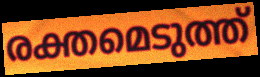
രക്തമെടുത്ത്